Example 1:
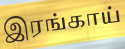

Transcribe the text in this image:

இரங்காய்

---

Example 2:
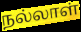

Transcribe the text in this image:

நல்லாள்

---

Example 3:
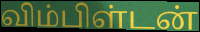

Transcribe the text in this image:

விம்பிள்டன்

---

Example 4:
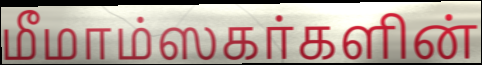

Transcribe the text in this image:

மீமாம்ஸகர்களின்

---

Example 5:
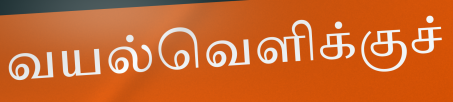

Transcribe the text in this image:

வயல்வெளிக்குச்